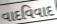
વાદવિવાદ